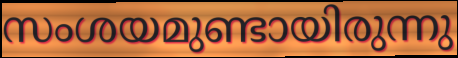
സംശയമുണ്ടായിരുന്നു